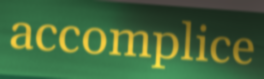
accomplice